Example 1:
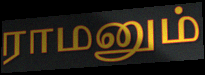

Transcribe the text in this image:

ராமனும்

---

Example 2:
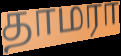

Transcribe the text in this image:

தாமரா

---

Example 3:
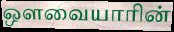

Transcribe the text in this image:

ஔவையாரின்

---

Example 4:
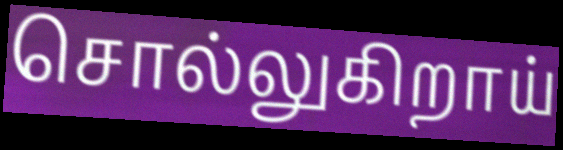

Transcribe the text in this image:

சொல்லுகிறாய்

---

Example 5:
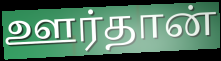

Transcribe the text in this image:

ஊர்தான்